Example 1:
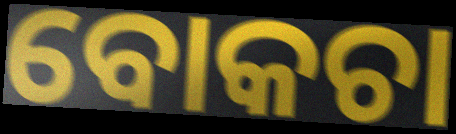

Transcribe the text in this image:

ବୋକଚା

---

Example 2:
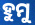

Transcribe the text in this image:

ହୁମୁ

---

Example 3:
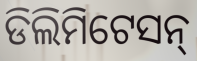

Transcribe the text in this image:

ଡିଲିମିଟେସନ୍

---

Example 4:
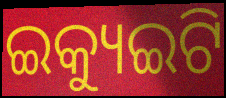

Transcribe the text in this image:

ଇକ୍ୟୁଇଟି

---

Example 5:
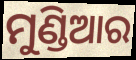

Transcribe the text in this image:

ମୁଣ୍ଡିଆର